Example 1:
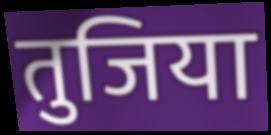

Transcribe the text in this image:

तुजिया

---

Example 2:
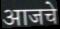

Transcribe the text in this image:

आजचे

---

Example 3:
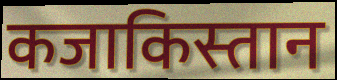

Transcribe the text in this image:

कजाकिस्तान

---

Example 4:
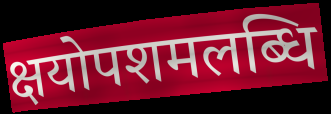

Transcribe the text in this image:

क्षयोपशमलब्धि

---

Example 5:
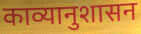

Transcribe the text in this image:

काव्यानुशासन